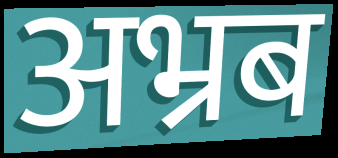
अभ्रब